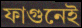
ফাগুনেই